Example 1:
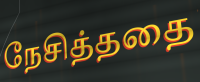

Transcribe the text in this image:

நேசித்ததை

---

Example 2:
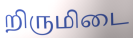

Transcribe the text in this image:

றிருமிடை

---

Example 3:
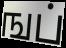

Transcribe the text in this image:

ஙப்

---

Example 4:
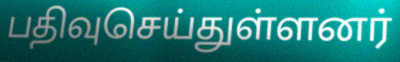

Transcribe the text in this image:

பதிவுசெய்துள்ளனர்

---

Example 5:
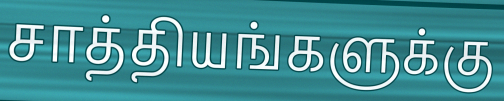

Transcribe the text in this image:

சாத்தியங்களுக்கு